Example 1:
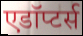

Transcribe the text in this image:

एडॉप्टर्स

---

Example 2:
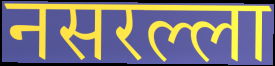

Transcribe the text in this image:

नसरल्ला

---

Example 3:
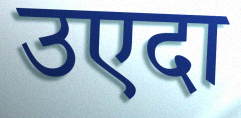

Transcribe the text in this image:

उएदा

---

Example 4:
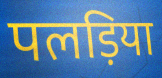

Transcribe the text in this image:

पलड़िया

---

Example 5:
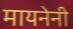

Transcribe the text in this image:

मायनेनी